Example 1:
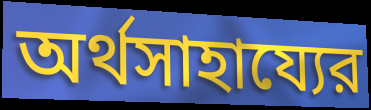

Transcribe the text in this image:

অর্থসাহায্যের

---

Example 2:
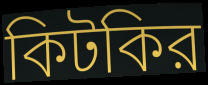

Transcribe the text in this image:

কিটকির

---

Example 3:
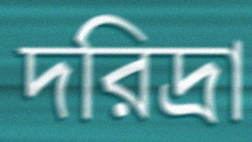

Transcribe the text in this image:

দরিদ্রা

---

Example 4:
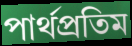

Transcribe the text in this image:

পার্থপ্রতিম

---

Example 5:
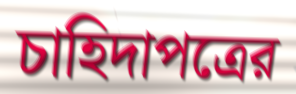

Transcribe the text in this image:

চাহিদাপত্রের